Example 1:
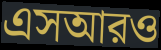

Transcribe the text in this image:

এসআরও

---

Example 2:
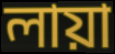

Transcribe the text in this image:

লায়া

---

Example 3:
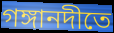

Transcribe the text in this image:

গঙ্গানদীতে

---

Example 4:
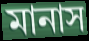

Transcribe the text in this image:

মানাস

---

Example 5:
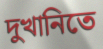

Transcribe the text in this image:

দুখানিতে